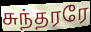
சுந்தரரே